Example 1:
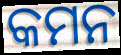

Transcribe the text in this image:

କମନ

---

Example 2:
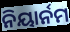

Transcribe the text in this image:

ନିୟାର୍ନମ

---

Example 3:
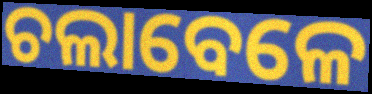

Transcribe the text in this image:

ଚଲାବେଳେ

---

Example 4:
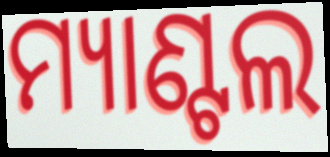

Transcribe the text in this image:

ମ୍ୟାଣ୍ଟଲ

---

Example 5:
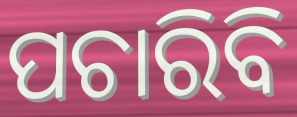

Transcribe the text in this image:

ପଚାରିବି